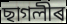
ছাগলীৰ